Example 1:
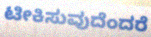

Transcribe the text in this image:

ಟೀಕಿಸುವುದೆಂದರೆ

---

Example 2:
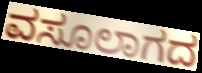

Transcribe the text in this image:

ವಸೂಲಾಗದ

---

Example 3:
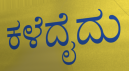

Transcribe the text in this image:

ಕಳೆದೈದು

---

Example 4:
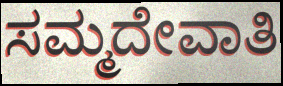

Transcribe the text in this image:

ಸಮ್ಮದೇವಾತಿ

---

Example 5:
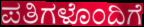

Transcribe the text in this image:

ಪತಿಗಳೊಂದಿಗೆ